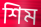
শিম